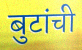
बुटांची